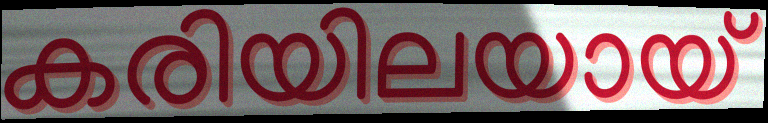
കരിയിലയായ്